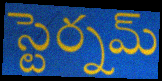
స్టెర్నమ్